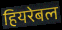
हियरेबल